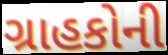
ગ્રાહકોની